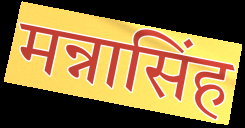
मन्नासिंह